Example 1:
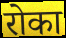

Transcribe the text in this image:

रोका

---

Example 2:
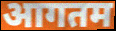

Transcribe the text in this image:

आगतम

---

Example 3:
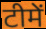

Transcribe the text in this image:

टीमें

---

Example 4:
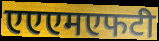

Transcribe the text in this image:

एएएमएफटी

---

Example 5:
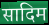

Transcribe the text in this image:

सादिम